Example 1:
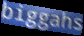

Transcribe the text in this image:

biggahs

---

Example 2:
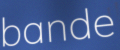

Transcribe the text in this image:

bande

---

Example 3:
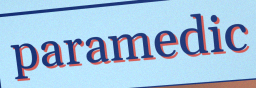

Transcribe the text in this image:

paramedic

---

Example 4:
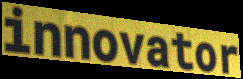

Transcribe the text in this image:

innovator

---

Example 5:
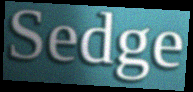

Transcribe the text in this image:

Sedge